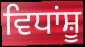
ਵਿਧਾਂਸ਼ੂ